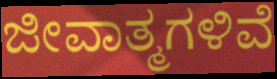
ಜೀವಾತ್ಮಗಳಿವೆ